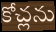
కోచ్లను